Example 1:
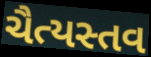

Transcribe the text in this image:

ચૈત્યસ્તવ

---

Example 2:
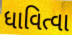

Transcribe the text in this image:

ધાવિત્વા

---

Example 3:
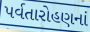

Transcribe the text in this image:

પર્વતારોહણનાં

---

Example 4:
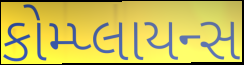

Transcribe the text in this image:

કોમ્પ્લાયન્સ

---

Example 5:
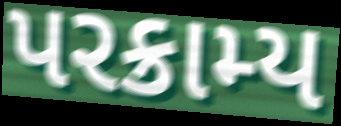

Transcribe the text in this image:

પરક્રામ્ય